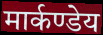
मार्कण्डेय